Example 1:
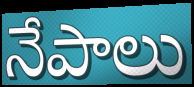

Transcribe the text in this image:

నేపాలు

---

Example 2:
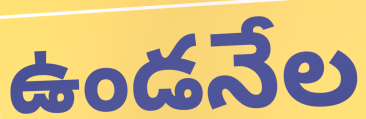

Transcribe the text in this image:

ఉండనేల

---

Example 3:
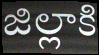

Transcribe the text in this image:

జిల్లాకి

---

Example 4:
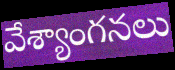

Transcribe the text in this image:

వేశ్యాంగనలు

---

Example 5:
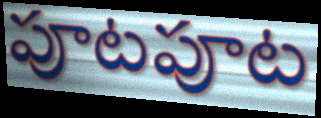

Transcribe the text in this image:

పూటపూట